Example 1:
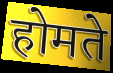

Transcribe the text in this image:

होमते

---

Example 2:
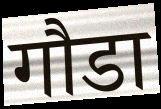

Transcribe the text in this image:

गौडा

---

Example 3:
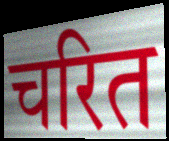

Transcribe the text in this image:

चरित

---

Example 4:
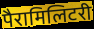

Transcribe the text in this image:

पैरामिलिटरी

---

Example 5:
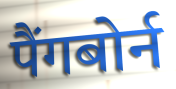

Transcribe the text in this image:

पैंगबोर्न